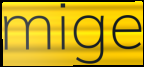
mige